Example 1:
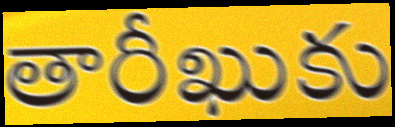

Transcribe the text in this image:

తారీఖుకు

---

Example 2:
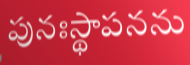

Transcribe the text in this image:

పునఃస్థాపనను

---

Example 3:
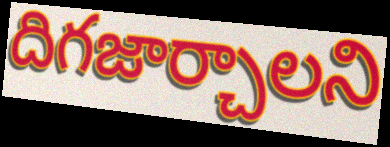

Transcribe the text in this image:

దిగజార్చాలని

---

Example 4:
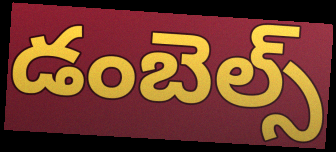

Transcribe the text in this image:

డంబెల్స్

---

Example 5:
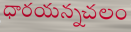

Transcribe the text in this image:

ధారయన్నచలం